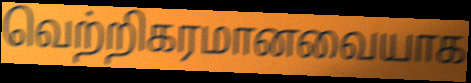
வெற்றிகரமானவையாக